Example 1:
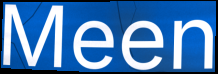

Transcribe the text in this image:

Meen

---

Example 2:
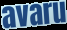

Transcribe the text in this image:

avaru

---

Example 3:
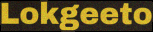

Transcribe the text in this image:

Lokgeeto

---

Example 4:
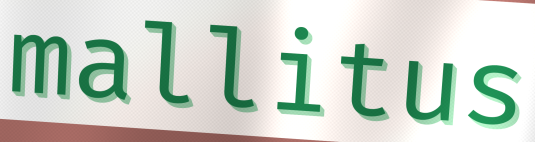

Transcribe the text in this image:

mallitus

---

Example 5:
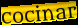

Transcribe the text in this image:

cocinar